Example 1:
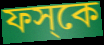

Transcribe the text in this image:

ফস্‌কে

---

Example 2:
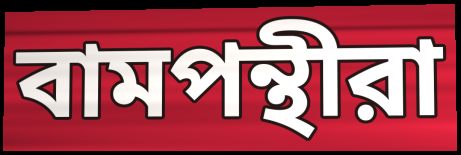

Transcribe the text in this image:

বামপন্থীরা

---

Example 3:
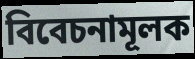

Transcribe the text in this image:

বিবেচনামূলক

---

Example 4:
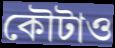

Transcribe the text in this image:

কৌটাও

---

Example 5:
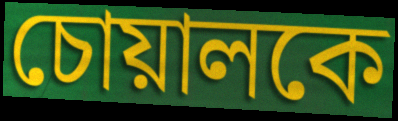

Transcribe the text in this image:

চোয়ালকে